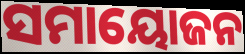
ସମାୟୋଜନ